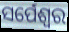
ସର୍ପେଶ୍ୱର